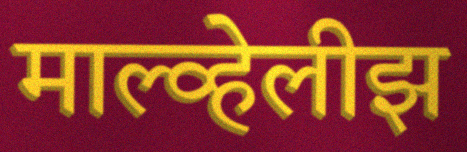
माल्व्हेलीझ